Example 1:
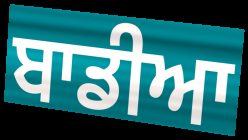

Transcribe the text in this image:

ਬਾਡੀਆ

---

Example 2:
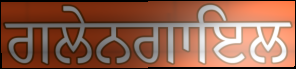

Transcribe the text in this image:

ਗਲੇਨਗਾਇਲ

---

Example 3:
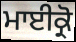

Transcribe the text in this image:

ਮਾਈਕ੍ਰੋ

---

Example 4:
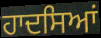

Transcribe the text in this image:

ਹਾਦਸਿਆਂ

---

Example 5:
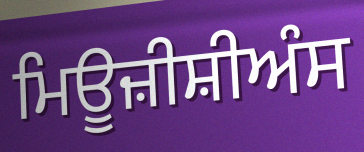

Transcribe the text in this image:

ਮਿਊਜ਼ੀਸ਼ੀਅੰਸ